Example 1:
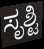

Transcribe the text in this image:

ಸೃಶ್ಟಿ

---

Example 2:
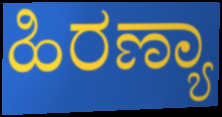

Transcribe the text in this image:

ಹಿರಣ್ಯಾ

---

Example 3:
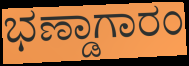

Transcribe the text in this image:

ಭಣ್ಡಾಗಾರಂ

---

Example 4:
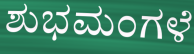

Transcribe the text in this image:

ಶುಭಮಂಗಳೆ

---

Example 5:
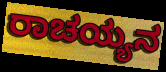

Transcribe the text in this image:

ರಾಚಯ್ಯನ